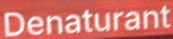
Denaturant